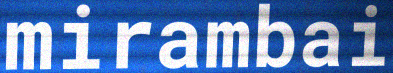
mirambai